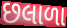
છલાળા